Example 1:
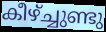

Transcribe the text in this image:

കീഴ്ച്ചുണ്ടു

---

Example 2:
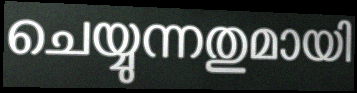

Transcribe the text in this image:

ചെയ്യുന്നതുമായി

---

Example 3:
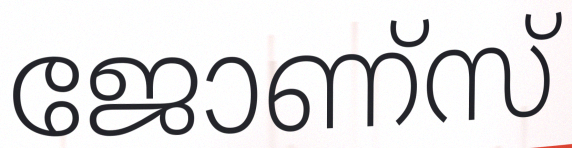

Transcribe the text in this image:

ജോണ്സ്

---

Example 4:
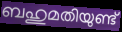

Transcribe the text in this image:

ബഹുമതിയുണ്ട്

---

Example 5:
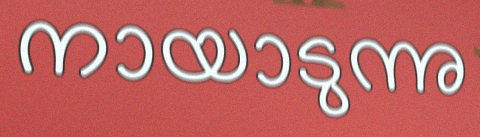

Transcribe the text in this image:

നായാടുന്നു